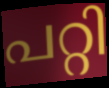
പറ്റി